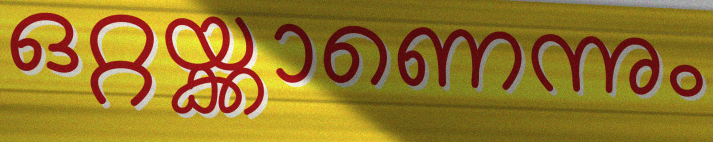
ഒറ്റയ്ക്കാണെന്നും